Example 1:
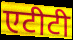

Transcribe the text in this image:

एटीटी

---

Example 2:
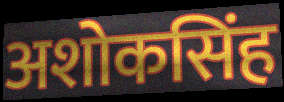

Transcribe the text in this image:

अशोकसिंह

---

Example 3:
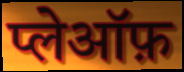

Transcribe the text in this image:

प्लेऑफ़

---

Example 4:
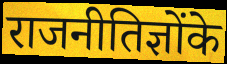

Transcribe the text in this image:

राजनीतिज्ञोंके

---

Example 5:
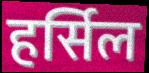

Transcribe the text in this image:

हर्सिल